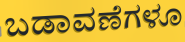
ಬಡಾವಣೆಗಳೂ